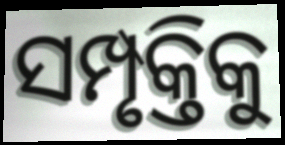
ସମ୍ପୃକ୍ତିକୁ